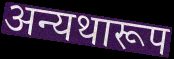
अन्यथारूप